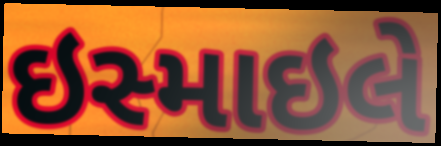
ઇસ્માઇલે